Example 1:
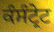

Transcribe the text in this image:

ਕੰਸੰਟ੍ਰੇਟ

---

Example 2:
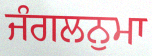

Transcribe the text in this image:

ਜੰਗਲਨੁਮਾ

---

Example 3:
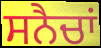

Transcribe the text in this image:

ਸਨੈਚਾਂ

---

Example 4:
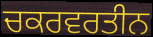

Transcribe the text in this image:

ਚਕਰਵਰਤੀਨ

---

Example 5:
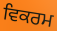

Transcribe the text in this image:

ਵਿਕਰਮ